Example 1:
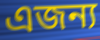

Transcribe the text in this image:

এজন্য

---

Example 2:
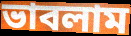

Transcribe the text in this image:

ভাবলাম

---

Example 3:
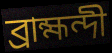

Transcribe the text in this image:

ব্রাহ্মন্দী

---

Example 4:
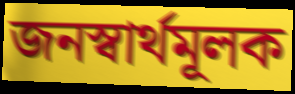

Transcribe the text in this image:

জনস্বার্থমূলক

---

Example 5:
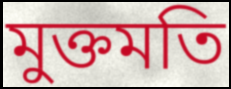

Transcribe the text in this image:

মুক্তমতি